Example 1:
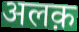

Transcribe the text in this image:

अलक़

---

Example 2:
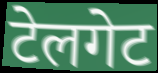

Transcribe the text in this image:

टेलगेट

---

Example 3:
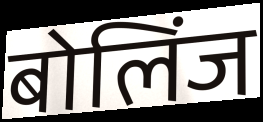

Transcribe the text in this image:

बोलिंज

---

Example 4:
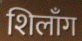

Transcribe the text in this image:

शिलाँग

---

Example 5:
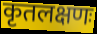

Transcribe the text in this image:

कृतलक्षणः